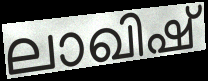
ലാഖിഷ്